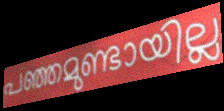
പഞ്ഞമുണ്ടായില്ല